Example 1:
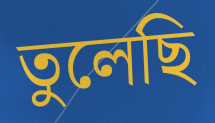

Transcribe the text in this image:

তুলেছি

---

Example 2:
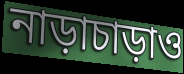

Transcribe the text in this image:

নাড়াচাড়াও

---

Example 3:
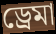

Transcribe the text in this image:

ড্রেমা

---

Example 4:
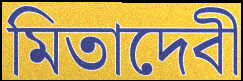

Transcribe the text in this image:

মিতাদেবী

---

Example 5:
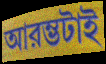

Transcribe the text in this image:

আরম্ভটাই